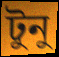
টুনু